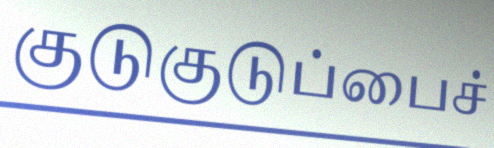
குடுகுடுப்பைச்